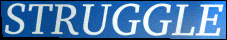
STRUGGLE